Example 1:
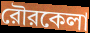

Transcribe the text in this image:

রৌরকেলা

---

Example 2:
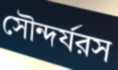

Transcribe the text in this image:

সৌন্দর্যরস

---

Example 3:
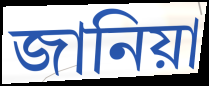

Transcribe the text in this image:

জানিয়া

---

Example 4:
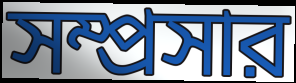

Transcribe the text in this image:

সম্প্রসার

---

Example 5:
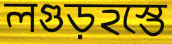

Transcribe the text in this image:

লগুড়হস্তে